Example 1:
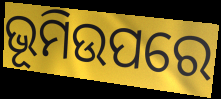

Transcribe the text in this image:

ଭୂମିଉପରେ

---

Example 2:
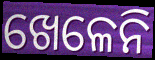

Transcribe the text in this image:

ଖେଳେନି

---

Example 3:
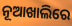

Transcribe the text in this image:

ନୂଆଖାଲିରେ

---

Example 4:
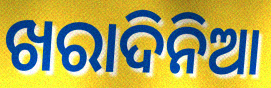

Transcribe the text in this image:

ଖରାଦିନିଆ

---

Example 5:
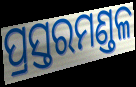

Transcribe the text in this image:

ପ୍ରସ୍ତରମଣ୍ଡଳ